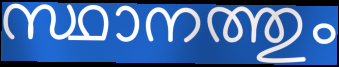
സ്ഥാനത്തും